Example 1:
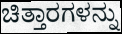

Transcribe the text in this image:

ಚಿತ್ತಾರಗಳನ್ನು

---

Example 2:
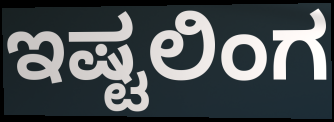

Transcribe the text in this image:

ಇಷ್ಟಲಿಂಗ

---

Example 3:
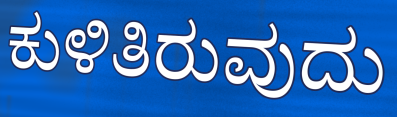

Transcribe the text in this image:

ಕುಳಿತಿರುವುದು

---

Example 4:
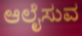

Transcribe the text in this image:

ಆಲೈಸುವ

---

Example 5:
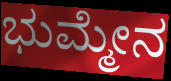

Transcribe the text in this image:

ಭುಮ್ಮೇನ